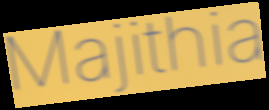
Majithia